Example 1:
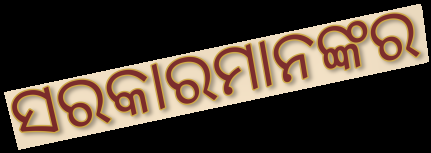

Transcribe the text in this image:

ସରକାରମାନଙ୍କର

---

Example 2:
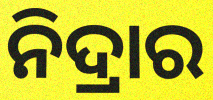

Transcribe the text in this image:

ନିଦ୍ରାର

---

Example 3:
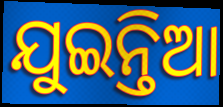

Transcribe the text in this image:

ଯୁଇନ୍ତିଆ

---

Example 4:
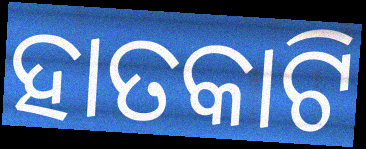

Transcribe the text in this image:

ହାତକାଟି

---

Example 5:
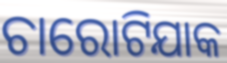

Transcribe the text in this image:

ଚାରୋଟିଯାକ